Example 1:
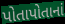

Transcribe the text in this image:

પોતાપોતાનાં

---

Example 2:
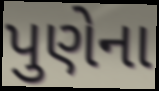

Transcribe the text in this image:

પુણેના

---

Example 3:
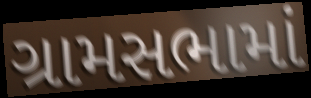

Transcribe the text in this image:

ગ્રામસભામાં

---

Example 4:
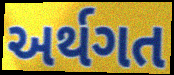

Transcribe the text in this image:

અર્થગત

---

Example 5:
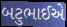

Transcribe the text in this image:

બટુભાઈએ